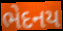
ભેદનય